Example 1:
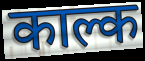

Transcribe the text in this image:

काल्क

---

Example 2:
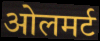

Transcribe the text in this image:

ओलमर्ट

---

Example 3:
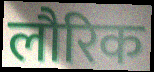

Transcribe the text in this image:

लौरिक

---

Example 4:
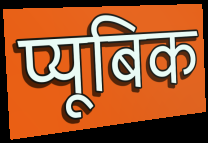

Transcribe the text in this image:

प्यूबिक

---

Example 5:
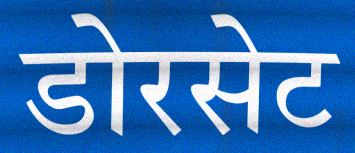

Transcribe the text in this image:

डोरसेट